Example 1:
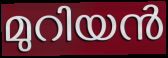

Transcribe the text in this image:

മുറിയൻ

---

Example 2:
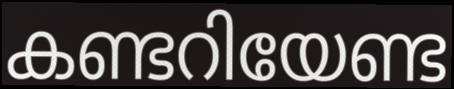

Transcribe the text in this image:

കണ്ടറിയേണ്ട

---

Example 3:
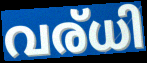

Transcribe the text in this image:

വര്ധി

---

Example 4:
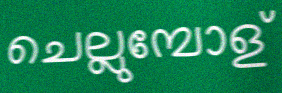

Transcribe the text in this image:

ചെല്ലുമ്പോള്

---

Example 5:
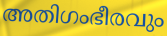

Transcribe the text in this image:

അതിഗംഭീരവും